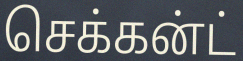
செக்கன்ட்